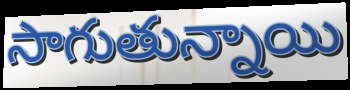
సాగుతున్నాయి